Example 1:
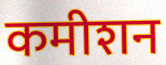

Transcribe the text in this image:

कमीशन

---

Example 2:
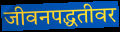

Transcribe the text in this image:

जीवनपद्धतीवर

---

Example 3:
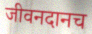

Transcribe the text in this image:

जीवनदानच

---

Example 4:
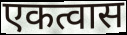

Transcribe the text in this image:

एकत्वास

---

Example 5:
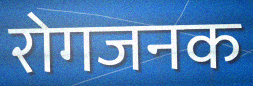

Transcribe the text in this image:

रोगजनक